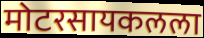
मोटरसायकलला